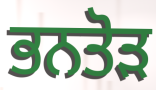
ਭਨਤੋੜ